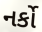
નર્કો